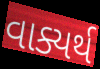
વાક્યર્થ